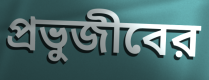
প্রভুজীবের